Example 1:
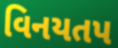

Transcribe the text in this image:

વિનયતપ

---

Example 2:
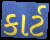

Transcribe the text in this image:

કાર્ટ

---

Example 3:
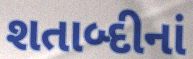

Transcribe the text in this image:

શતાબ્દીનાં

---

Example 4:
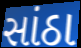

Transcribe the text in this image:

સાંઠા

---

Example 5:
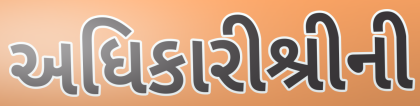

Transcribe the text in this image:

અધિકારીશ્રીની